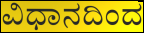
ವಿಧಾನದಿಂದ